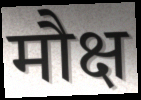
मौक्ष